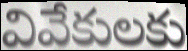
వివేకులకు